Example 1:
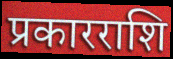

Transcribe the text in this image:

प्रकारराशि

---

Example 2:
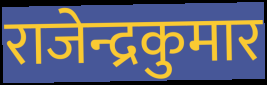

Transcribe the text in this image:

राजेन्द्रकुमार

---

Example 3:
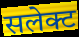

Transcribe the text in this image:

सलेक्ट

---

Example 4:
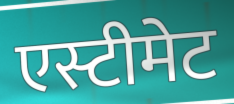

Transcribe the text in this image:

एस्‍टीमेट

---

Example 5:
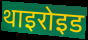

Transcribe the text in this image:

थाइरोइड